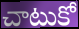
చాటుకో